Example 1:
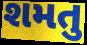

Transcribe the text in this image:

શમતુ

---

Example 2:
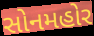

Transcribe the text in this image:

સોનમહોર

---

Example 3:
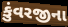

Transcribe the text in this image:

કુંવરજીના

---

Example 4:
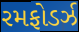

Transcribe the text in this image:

રમફોડર્ઝ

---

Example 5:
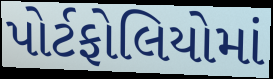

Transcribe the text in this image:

પોર્ટફોલિયોમાં